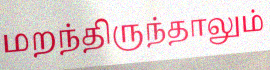
மறந்திருந்தாலும்